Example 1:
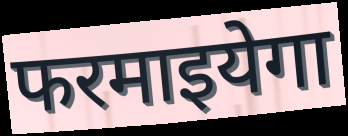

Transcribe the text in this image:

फरमाइयेगा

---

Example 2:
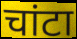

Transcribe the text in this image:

चांटा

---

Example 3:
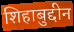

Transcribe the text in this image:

शिहाबुद्दीन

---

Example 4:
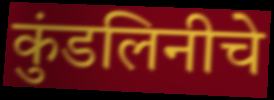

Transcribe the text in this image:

कुंडलिनीचे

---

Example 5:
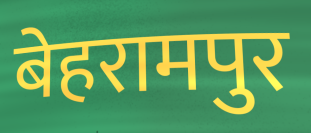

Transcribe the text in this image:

बेहरामपुर